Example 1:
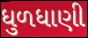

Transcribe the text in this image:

ધુળધાણી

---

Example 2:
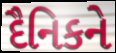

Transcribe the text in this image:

દૈનિકને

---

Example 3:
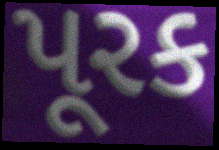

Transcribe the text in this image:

પૂરક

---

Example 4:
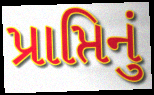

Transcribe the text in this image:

પ્રાપ્તિનું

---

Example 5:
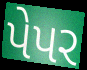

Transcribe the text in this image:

પેપર